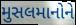
મુસલમાનોને